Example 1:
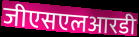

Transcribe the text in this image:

जीएसएलआरडी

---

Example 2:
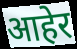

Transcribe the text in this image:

आहेर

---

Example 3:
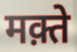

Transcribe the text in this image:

मक़्ते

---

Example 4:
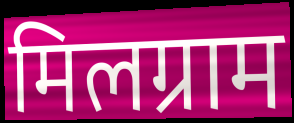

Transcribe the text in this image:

मिलग्राम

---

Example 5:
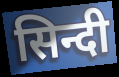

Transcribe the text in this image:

सिन्दी